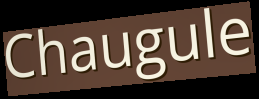
Chaugule